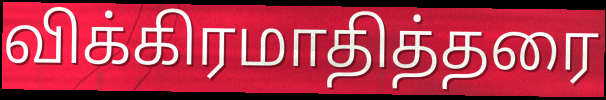
விக்கிரமாதித்தரை